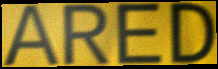
ARED